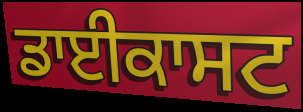
ਡਾਈਕਾਸਟ